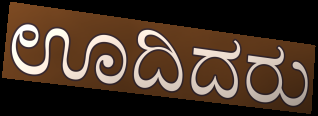
ಊದಿದರು